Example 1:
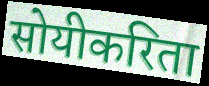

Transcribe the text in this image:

सोयीकरिता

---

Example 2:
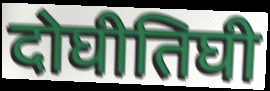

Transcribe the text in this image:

दोघीतिघी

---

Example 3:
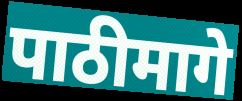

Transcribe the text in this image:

पाठीमागे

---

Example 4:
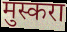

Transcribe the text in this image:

मुस्करा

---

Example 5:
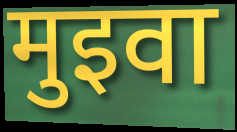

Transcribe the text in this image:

मुइवा